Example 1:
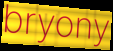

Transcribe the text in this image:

bryony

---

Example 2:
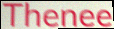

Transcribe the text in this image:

Thenee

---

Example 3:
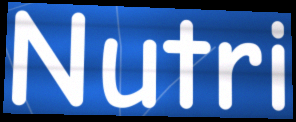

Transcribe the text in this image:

Nutri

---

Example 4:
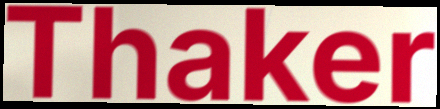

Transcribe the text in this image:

Thaker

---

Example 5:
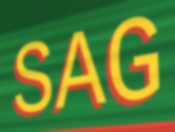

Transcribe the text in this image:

SAG